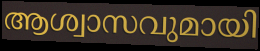
ആശ്വാസവുമായി